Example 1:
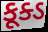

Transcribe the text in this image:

કૂક્ડ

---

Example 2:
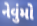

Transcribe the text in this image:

નેવુંમો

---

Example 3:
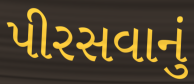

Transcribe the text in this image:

પીરસવાનું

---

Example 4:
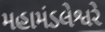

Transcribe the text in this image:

મહામંડલેશ્વરે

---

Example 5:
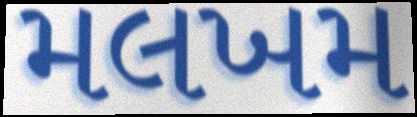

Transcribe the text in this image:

મલખમ